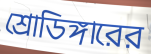
শ্রোডিঙ্গারের